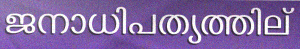
ജനാധിപത്യത്തില്